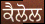
ਕੈਲੋਲ